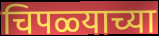
चिपळ्याच्या